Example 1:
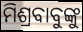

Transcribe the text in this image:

ମିଶ୍ରବାବୁଙ୍କୁ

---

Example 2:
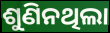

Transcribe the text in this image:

ଶୁଣିନଥିଲା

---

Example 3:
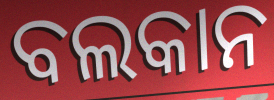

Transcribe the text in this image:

ବଲକାନ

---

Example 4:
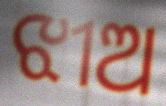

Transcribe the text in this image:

ଝୀଅ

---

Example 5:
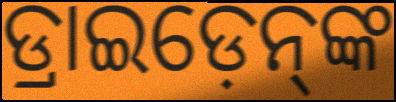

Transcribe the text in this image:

ଡ୍ରାଇଡ଼େନ୍‌ଙ୍କ